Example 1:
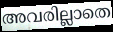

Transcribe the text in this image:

അവരില്ലാതെ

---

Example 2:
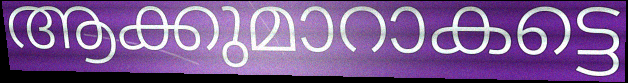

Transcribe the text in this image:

ആക്കുമാറാകട്ടെ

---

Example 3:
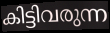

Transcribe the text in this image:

കിട്ടിവരുന്ന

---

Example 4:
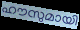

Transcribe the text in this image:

ഹൗസുമായി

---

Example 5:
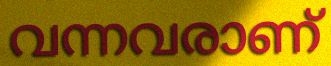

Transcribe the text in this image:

വന്നവരാണ്